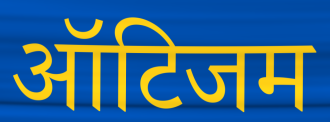
ऑटिजम